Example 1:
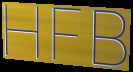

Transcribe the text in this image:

HFB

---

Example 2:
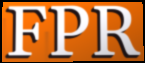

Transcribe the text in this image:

FPR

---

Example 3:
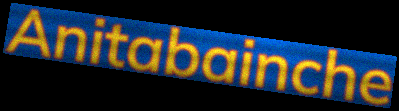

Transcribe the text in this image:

Anitabainche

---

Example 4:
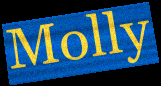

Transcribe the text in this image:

Molly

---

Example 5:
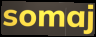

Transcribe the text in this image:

somaj